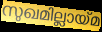
സുഖമില്ലായ്മ